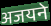
अजयने